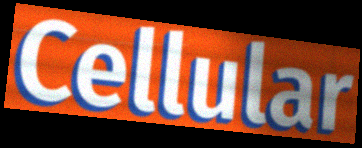
Cellular